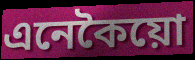
এনেকৈয়ো